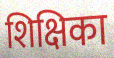
शिक्षिका